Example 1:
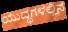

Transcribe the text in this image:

ಯುದ್ಧಗಳಲ್ಲಿನ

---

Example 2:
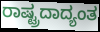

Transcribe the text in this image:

ರಾಷ್ಟ್ರದಾದ್ಯಂತ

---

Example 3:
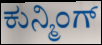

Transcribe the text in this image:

ಕುನ್ಮಿಂಗ್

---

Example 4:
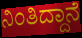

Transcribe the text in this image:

ನಿಂತಿದ್ದಾನೆ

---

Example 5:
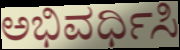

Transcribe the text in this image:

ಅಭಿವರ್ಧಿಸಿ